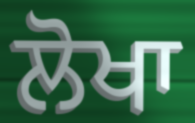
ਲੋਖਾ